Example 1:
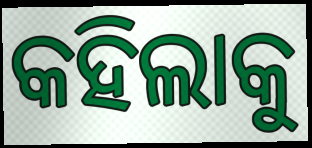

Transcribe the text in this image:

କହିଲାକୁ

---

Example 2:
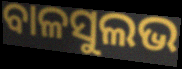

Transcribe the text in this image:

ବାଳସୁଲଭ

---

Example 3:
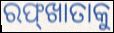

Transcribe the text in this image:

ରଫ୍‌ଖାତାକୁ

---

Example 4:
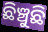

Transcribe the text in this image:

ଛିଞ୍ଚୁଛି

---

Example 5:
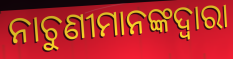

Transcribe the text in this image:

ନାଚୁଣୀମାନଙ୍କଦ୍ୱାରା